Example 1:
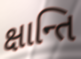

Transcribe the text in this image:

ક્ષાન્તિ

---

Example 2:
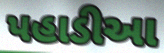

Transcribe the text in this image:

પહાડીઆ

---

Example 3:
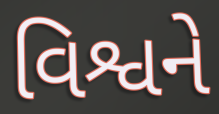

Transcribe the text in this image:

વિશ્વને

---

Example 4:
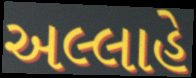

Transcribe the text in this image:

અલ્લાહે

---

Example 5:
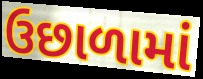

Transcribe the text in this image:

ઉછાળામાં